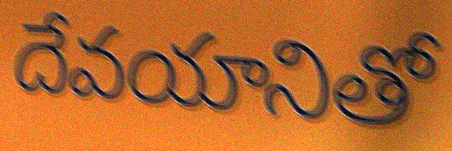
దేవయానితో